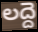
లద్దె